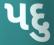
પદુ